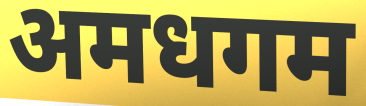
अमधगम